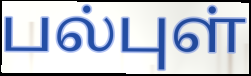
பல்புள்